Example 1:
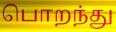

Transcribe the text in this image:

பொறந்து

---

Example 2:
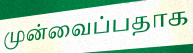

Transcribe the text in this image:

முன்வைப்பதாக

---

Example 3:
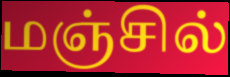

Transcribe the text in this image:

மஞ்சில்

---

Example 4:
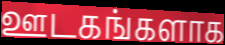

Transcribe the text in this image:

ஊடகங்களாக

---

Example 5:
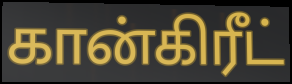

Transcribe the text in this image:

கான்கிரீட்